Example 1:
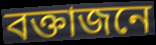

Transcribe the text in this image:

বক্তাজনে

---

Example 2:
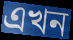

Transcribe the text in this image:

এখন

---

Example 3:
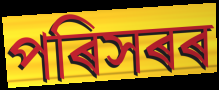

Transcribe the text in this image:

পৰিসৰৰ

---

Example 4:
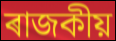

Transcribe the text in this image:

ৰাজকীয়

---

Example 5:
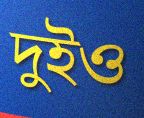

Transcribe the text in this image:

দুইও